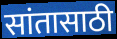
सांतासाठी